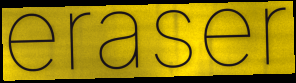
eraser